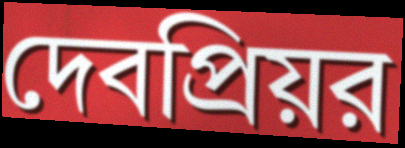
দেবপ্রিয়র